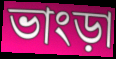
ভাংড়া